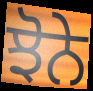
ਝੋਨੇ